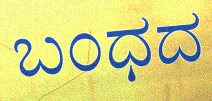
ಬಂಧದ